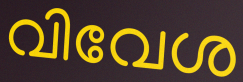
വിവേശ